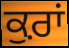
ਕ਼ੁਰਾਂ